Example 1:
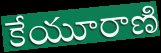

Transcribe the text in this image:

కేయూరాణి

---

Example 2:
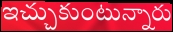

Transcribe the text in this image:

ఇచ్చుకుంటున్నారు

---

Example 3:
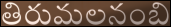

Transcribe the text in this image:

తిరుమలనంబి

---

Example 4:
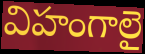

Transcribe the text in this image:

విహంగాలై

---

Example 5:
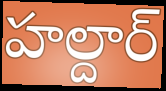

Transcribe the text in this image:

హల్దార్